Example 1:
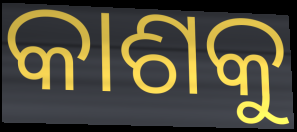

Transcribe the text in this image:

କାଶକୁ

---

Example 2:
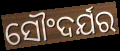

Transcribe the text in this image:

ସୌଂଦର୍ଯର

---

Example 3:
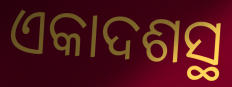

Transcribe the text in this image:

ଏକାଦଶସ୍ଥ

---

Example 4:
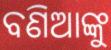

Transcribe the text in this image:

ବଣିଆଙ୍କୁ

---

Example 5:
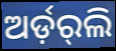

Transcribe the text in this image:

ଅର୍ଡ଼ର୍‌ଲି